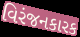
વિરંજનકારક